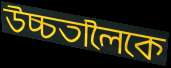
উচ্চতালৈকে